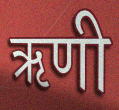
ऋणी